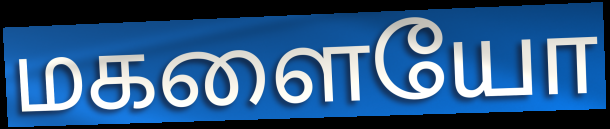
மகளையோ